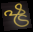
ഷ്ട്ര